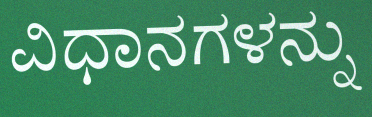
ವಿಧಾನಗಳನ್ನು